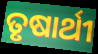
ତୃଷାର୍ଥୀ